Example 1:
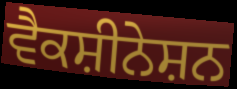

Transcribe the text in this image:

ਵੈਕਸ਼ੀਨੇਸ਼ਨ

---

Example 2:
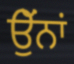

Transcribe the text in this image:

ਉਂੱਨਾਂ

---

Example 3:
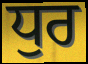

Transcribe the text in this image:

ਧੁਰ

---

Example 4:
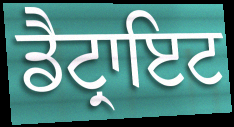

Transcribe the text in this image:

ਡੈਟ੍ਰਾਇਟ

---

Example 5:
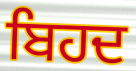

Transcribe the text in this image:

ਬਿਹਦ